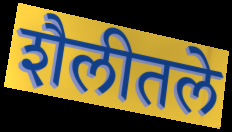
शैलीतले